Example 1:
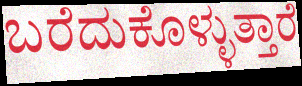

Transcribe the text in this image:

ಬರೆದುಕೊಳ್ಳುತ್ತಾರೆ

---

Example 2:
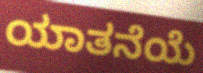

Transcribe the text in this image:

ಯಾತನೆಯೆ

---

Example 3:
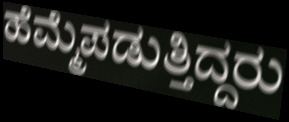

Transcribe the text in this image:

ಹೆಮ್ಮೆಪಡುತ್ತಿದ್ದರು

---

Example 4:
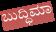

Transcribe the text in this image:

ಬುದ್ಧಿಮಾ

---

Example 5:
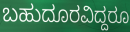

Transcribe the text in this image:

ಬಹುದೂರವಿದ್ದರೂ